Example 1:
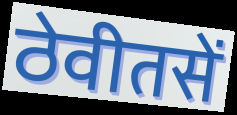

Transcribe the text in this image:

ठेवीतसें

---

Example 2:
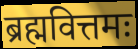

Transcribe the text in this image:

ब्रह्मवित्तमः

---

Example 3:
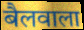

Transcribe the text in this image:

बैलवाला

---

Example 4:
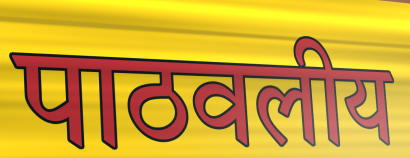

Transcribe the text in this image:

पाठवलीय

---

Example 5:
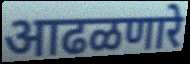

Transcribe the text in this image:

आढळणारे